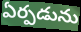
ఏర్పడును